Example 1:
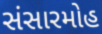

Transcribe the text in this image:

સંસારમોહ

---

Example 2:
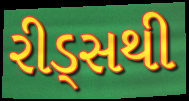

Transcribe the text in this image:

રીડ્સથી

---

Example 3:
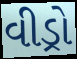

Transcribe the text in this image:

વીડ્રો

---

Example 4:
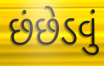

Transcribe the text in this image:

છંછેડવું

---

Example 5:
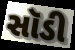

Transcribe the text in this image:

સૉડી